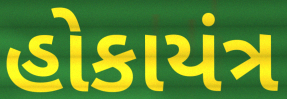
હોકાયંત્ર